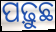
ପଢ଼ୁଛ